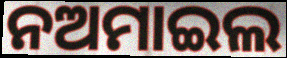
ନଅମାଇଲ